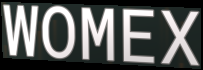
WOMEX